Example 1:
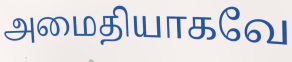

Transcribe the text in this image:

அமைதியாகவே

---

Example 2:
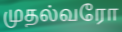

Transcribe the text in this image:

முதல்வரோ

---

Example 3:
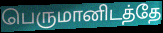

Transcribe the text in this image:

பெருமானிடத்தே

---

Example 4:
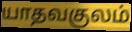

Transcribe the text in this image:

யாதவகுலம்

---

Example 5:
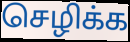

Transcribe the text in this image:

செழிக்க